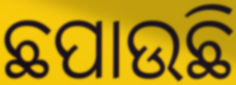
ଛପାଉଛି